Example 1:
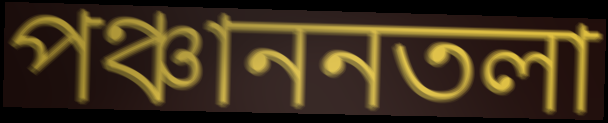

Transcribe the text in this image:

পঞ্চাননতলা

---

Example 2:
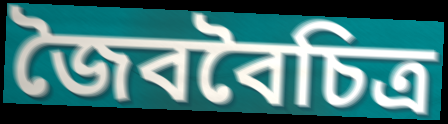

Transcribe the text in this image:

জৈববৈচিত্র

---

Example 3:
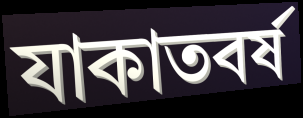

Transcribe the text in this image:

যাকাতবর্ষ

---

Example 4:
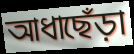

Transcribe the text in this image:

আধাছেঁড়া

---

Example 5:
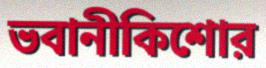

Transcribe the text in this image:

ভবানীকিশোর